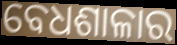
ବେଧଶାଳାର